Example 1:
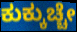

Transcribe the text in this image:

ಕುಕ್ಕುಚ್ಚೇ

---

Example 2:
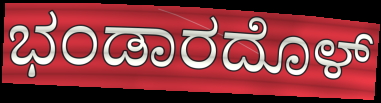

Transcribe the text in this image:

ಭಂಡಾರದೊಳ್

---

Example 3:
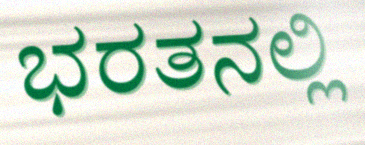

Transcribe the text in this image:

ಭರತನಲ್ಲಿ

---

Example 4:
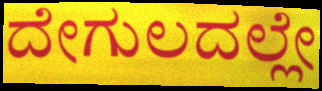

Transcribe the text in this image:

ದೇಗುಲದಲ್ಲೇ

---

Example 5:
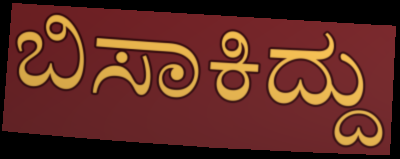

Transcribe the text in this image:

ಬಿಸಾಕಿದ್ದು